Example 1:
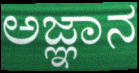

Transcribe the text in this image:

ಅಜ್ಞಾನ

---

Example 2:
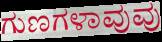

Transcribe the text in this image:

ಗುಣಗಳಾವುವು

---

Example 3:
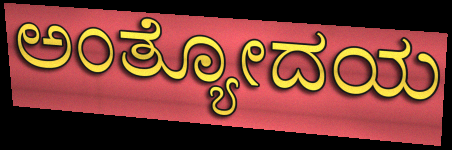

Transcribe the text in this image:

ಅಂತ್ಯೋದಯ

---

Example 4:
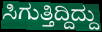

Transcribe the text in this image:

ಸಿಗುತ್ತಿದ್ದಿದ್ದು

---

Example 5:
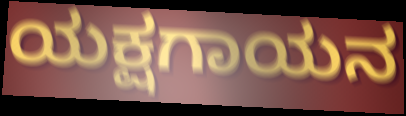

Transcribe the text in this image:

ಯಕ್ಷಗಾಯನ